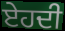
ਏਹਦੀ